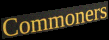
Commoners